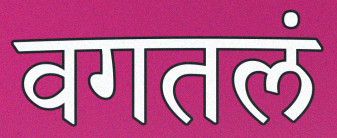
वगतलं